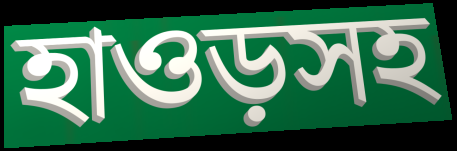
হাওড়সহ